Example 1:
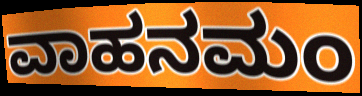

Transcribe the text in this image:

ವಾಹನಮಂ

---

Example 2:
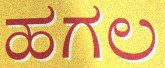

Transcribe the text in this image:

ಹಗಲ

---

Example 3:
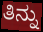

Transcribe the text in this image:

ತಿನ್ನು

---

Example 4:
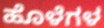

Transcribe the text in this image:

ಹೊಳೆಗಳ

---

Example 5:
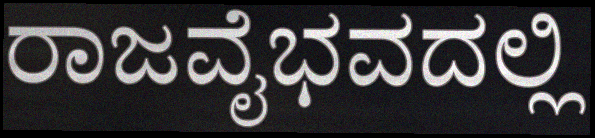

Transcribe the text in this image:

ರಾಜವೈಭವದಲ್ಲಿ